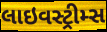
લાઇવસ્ટ્રીમ્સ